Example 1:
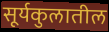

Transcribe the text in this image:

सूर्यकुलातील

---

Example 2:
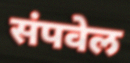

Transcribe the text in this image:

संपवेल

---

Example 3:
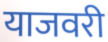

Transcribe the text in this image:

याजवरी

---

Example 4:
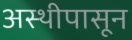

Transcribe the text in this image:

अस्थीपासून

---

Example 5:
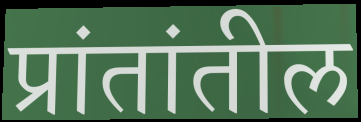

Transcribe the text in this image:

प्रांतांतील